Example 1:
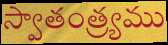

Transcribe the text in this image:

స్వాతంత్ర్యము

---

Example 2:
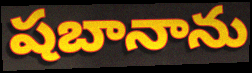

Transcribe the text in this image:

షబానాను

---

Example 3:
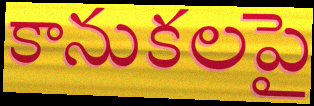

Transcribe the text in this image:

కానుకలపై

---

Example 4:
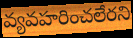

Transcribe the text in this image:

వ్యవహరించలేరని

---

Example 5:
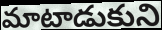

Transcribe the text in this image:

మాటాడుకుని